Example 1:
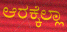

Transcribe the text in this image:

ಆರಕ್ಕೆಲ್ಲಾ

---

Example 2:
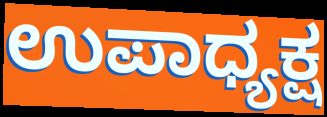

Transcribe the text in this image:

ಉಪಾಧ್ಯಕ್ಷ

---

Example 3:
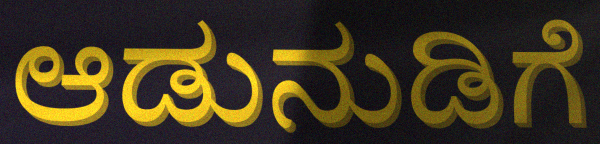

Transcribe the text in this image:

ಆಡುನುಡಿಗೆ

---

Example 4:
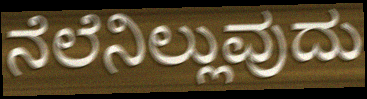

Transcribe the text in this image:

ನೆಲೆನಿಲ್ಲುವುದು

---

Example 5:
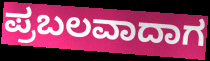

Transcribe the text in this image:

ಪ್ರಬಲವಾದಾಗ